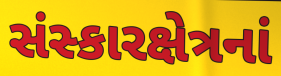
સંસ્કારક્ષેત્રનાં